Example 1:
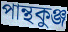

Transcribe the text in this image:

পান্থকুঞ্জ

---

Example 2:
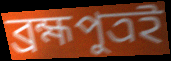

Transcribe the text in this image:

ব্রহ্মপুত্রই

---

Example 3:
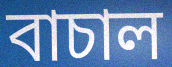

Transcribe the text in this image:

বাচাল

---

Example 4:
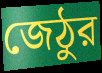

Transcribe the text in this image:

জেঠুর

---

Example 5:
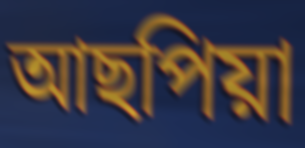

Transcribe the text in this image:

আছপিয়া